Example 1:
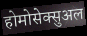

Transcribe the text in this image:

होमोसेक्सुअल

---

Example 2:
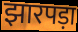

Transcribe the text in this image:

झारपड़ा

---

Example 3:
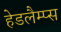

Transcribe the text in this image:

हेडलैम्प्स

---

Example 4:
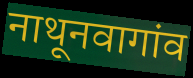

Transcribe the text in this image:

नाथूनवागांव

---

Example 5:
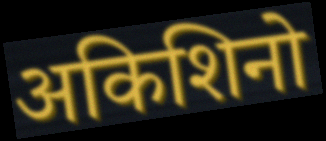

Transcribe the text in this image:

अकिशिनो